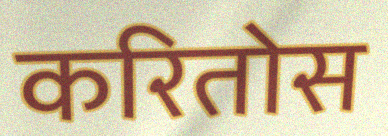
करितोस